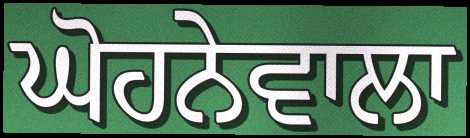
ਘੋਹਨੇਵਾਲਾ